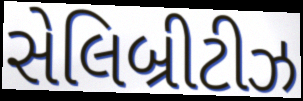
સેલિબ્રીટીઝ